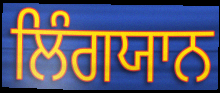
ਲਿੰਗਯਾਨ